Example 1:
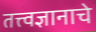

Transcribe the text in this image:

तत्त्वज्ञानाचे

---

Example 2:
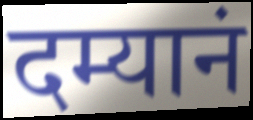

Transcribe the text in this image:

दम्यानं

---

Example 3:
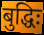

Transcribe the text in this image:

बुद्धिः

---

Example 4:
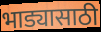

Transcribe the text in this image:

भाड्यासाठी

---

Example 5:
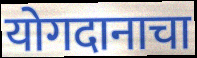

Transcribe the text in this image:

योगदानाचा